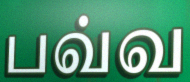
பவ்வ